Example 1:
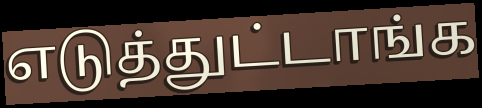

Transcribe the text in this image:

எடுத்துட்டாங்க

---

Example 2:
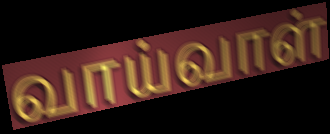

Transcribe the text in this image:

வாய்வாள்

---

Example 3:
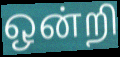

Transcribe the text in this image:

ஒன்றி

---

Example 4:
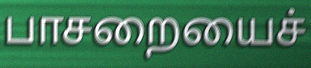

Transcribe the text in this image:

பாசறையைச்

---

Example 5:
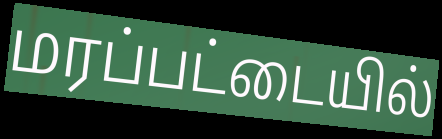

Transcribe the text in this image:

மரப்பட்டையில்